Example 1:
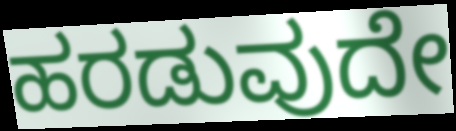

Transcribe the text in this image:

ಹರಡುವುದೇ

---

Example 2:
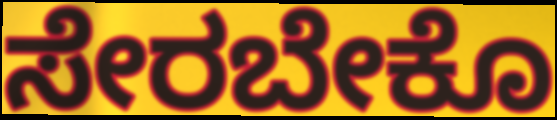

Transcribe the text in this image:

ಸೇರಬೇಕೊ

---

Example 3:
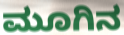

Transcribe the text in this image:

ಮೂಗಿನ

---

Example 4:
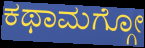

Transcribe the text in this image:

ಕಥಾಮಗ್ಗೋ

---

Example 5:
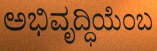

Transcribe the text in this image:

ಅಭಿವೃದ್ಧಿಯೆಂಬ